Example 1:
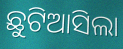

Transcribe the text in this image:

ଛୁଟିଆସିଲା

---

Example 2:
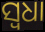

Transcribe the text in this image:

ସ୍ୱଧା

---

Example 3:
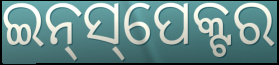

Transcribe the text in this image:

ଇନ୍‍ସ୍‌ପେକ୍ଟର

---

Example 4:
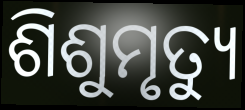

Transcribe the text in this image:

ଶିଶୁମୃତ୍ୟୁ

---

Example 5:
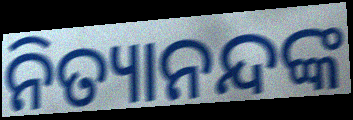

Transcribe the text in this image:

ନିତ୍ୟାନନ୍ଦଙ୍କ